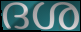
ദശ